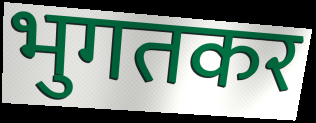
भुगतकर